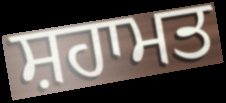
ਸ਼ਹਾਮਤ